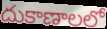
దుకాణాలలో